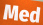
Med